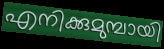
എനിക്കുമുമ്പായി